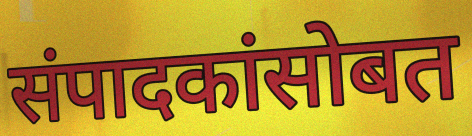
संपादकांसोबत